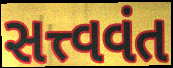
સત્ત્વવંત